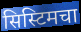
सिस्टिमचा